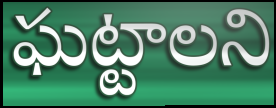
ఘట్టాలని